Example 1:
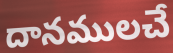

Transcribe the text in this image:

దానములచే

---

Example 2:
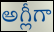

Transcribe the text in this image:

అగ్లీగా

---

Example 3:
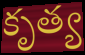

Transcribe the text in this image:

కృత్య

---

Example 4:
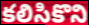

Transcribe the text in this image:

కలిసికొని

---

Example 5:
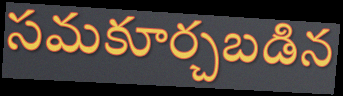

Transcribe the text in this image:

సమకూర్చబడిన